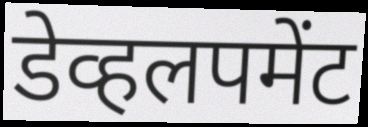
डेव्हलपमेंट